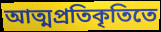
আত্মপ্রতিকৃতিতে